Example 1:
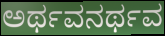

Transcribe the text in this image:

ಅರ್ಥವನರ್ಥವ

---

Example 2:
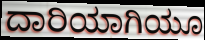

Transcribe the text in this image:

ದಾರಿಯಾಗಿಯೂ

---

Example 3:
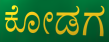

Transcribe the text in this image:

ಕೋಡಗ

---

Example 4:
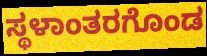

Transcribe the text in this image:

ಸ್ಥಳಾಂತರಗೊಂಡ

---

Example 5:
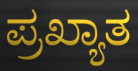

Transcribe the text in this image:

ಪ್ರಖ್ಯಾತ